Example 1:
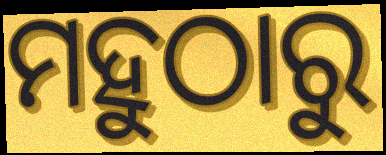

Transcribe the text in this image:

ମହୁଠାରୁ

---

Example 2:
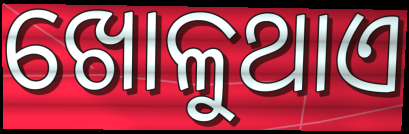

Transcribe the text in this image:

ଖୋଳୁଥାଏ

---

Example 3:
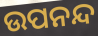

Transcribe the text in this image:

ଉପନନ୍ଦ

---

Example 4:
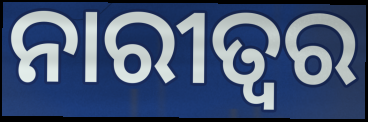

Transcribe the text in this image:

ନାରୀତ୍ୱର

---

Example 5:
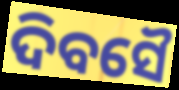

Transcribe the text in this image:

ଦିବସୈ